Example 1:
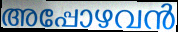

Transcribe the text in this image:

അപ്പോഴവൻ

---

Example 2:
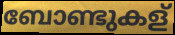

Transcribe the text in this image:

ബോണ്ടുകള്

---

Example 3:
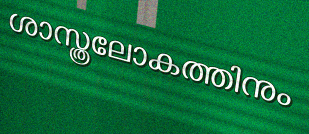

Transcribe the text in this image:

ശാസ്ത്രലോകത്തിനും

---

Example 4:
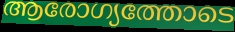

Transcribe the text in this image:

ആരോഗ്യത്തോടെ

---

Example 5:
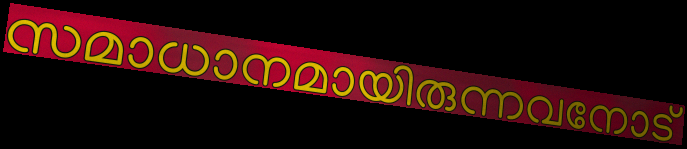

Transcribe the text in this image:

സമാധാനമായിരുന്നവനോട്